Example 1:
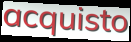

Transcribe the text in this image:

acquisto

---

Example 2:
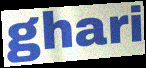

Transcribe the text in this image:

ghari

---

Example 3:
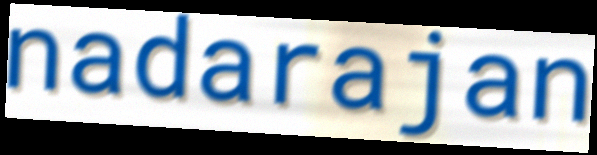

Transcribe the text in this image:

nadarajan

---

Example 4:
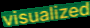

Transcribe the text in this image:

visualized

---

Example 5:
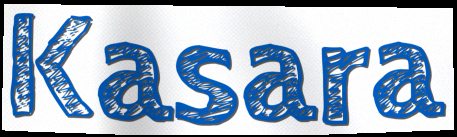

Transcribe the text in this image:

Kasara